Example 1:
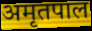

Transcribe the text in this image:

अमृतपाल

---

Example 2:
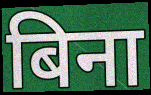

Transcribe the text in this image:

बिना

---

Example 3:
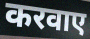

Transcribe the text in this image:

करवाए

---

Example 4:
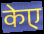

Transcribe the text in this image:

केए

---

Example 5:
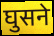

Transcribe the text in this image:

घुसने